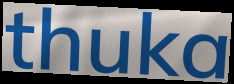
thuka